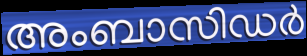
അംബാസിഡർ